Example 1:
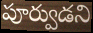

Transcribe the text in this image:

పూర్వుడని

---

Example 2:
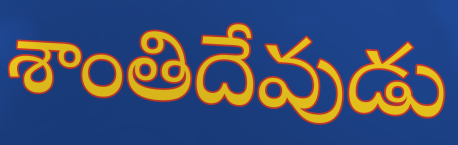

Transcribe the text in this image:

శాంతిదేవుడు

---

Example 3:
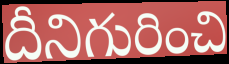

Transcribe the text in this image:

దీనిగురించి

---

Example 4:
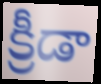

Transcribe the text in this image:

క్రీడా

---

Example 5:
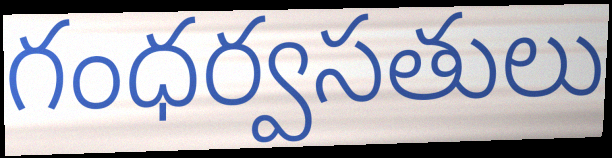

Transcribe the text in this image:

గంధర్వసతులు